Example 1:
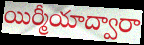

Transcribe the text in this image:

యిర్మీయాద్వారా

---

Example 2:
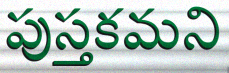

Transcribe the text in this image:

పుస్తకమని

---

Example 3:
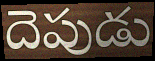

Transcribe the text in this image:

దెపుడు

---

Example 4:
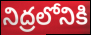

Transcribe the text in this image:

నిద్రలోనికి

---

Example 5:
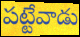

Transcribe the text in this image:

పట్టేవాడు